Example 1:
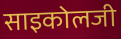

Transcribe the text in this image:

साइकोलजी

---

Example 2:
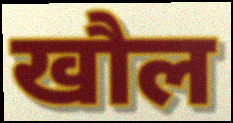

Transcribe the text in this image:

खौल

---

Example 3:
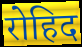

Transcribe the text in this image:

रोहिद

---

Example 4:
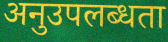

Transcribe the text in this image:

अनुउपलब्धता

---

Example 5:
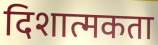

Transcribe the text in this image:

दिशात्मकता